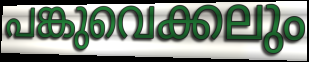
പങ്കുവെക്കലും